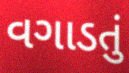
વગાડતું